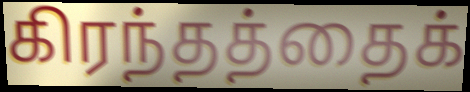
கிரந்தத்தைக்